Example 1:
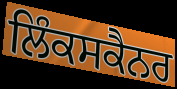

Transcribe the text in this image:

ਲਿੰਕਸਕੈਨਰ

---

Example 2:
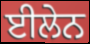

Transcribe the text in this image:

ਈਲੇਨ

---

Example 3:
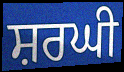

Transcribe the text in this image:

ਸ਼ਰਘੀ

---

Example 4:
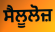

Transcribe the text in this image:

ਸੈਲੂਲੋਜ਼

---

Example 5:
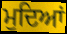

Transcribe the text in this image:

ਮੁਦਿਆਂ